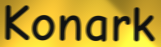
Konark